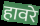
हावरे